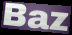
Baz